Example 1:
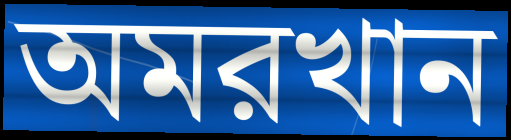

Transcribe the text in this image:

অমরখান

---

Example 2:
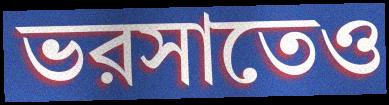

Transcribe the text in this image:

ভরসাতেও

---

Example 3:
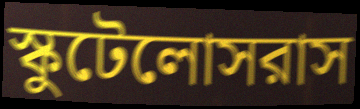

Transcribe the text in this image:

স্কুটেলোসরাস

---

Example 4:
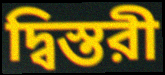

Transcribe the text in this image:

দ্বিস্তরী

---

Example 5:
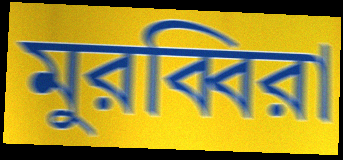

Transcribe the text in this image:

মুরব্বিরা